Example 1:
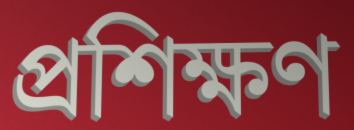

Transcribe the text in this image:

প্রশিক্ষণ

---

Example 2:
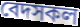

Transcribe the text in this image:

বেদসকল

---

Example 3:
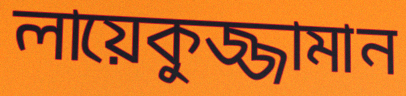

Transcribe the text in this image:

লায়েকুজ্জামান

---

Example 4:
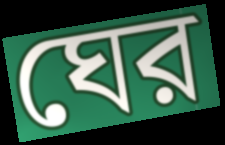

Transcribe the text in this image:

ঘের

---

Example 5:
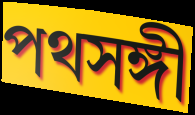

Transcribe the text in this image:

পথসঙ্গী